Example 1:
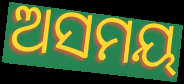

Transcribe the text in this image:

ଅସମୟ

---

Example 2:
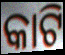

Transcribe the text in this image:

କାଟି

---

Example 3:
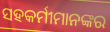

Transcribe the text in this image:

ସହକର୍ମୀମାନଙ୍କର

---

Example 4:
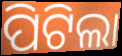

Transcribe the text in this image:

ପିଟିଲା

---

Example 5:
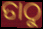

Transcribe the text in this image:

ତାଠୁ